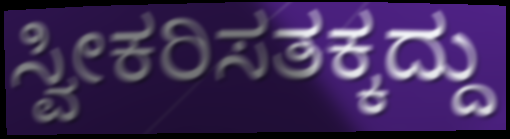
ಸ್ವೀಕರಿಸತಕ್ಕದ್ದು